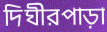
দিঘীরপাড়া